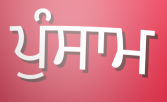
ਪੁੰਸਾਮ